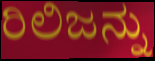
ರಿಲಿಜನ್ನು